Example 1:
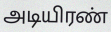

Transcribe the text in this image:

அடியிரண்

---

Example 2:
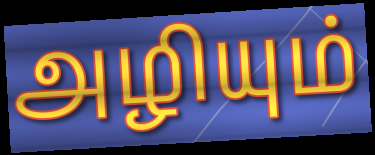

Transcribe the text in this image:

அழியும்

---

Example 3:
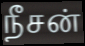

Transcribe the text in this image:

நீசன்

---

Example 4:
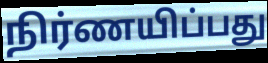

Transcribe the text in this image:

நிர்ணயிப்பது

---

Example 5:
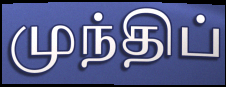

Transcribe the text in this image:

முந்திப்